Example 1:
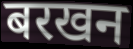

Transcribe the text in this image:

बरखन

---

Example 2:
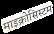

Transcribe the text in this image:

माइक्रोसिस्टम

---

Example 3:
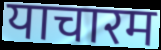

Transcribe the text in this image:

याचारम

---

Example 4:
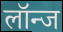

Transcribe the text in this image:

लॉन्ज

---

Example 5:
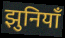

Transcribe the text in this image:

झुनियाँ